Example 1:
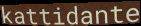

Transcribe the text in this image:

kattidante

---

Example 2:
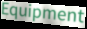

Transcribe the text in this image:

Equipment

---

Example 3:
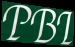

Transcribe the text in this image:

PBI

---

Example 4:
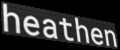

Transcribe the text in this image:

heathen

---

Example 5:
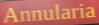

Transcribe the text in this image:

Annularia